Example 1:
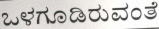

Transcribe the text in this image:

ಒಳಗೂಡಿರುವಂತೆ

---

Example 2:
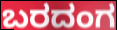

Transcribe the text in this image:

ಬರದಂಗ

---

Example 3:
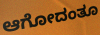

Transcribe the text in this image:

ಆಗೋದಂತೂ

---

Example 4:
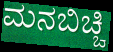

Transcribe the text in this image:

ಮನಬಿಚ್ಚಿ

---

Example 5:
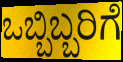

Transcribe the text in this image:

ಒಬ್ಬಿಬ್ಬರಿಗೆ